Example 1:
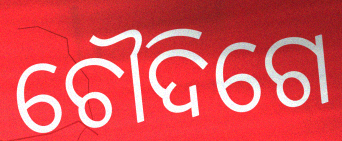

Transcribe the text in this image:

ଚୌଦିଗେ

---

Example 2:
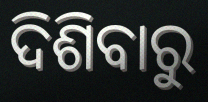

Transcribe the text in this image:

ଦିଶିବାରୁ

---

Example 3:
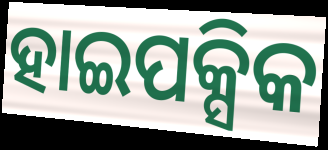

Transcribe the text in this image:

ହାଇପକ୍ସିକ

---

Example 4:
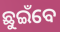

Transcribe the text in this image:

ଛୁଇଁବେ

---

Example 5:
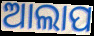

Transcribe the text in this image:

ଆଲାପ